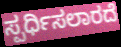
ಸ್ಪರ್ಧಿಸಲಾರದೆ